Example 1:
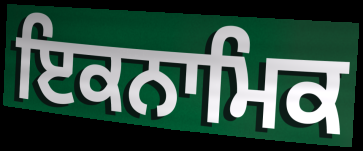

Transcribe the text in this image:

ਇਕਨਾਮਿਕ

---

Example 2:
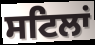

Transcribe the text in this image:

ਸਟਿਲਾਂ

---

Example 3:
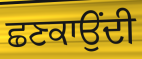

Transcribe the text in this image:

ਛਣਕਾਉਂਦੀ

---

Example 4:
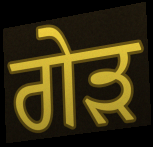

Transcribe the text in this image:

ਗੇੜ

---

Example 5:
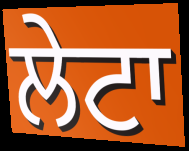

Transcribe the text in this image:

ਲੇਟਾ